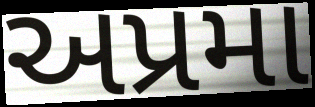
અપ્રમા